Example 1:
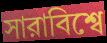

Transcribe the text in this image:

সারাবিশ্বে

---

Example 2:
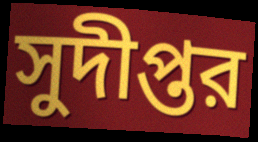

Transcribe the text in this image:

সুদীপ্তর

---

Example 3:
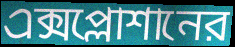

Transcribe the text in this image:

এক্সপ্লোশানের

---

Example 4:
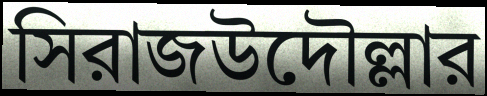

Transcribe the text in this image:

সিরাজউদৌল্লার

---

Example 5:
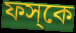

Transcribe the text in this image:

ফস্‌কে